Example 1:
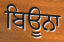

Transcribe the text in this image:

ਬਿਊਨਾ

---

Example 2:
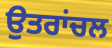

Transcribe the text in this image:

ਉਤਰਾਂਚਲ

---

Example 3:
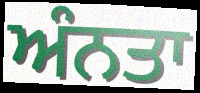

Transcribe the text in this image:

ਅੰਨਤਾ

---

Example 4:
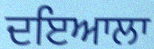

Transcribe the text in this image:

ਦਇਆਲਾ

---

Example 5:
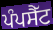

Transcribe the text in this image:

ਪੰਪਸੈੱਟ